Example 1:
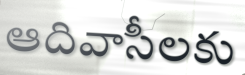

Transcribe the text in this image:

ఆదివాసీలకు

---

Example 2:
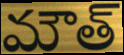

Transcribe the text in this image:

మౌత్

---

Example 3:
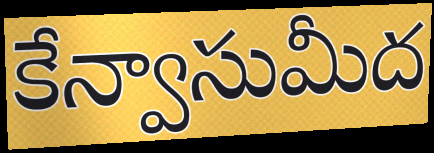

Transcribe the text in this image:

కేన్వాసుమీద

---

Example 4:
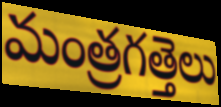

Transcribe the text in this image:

మంత్రగత్తెలు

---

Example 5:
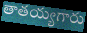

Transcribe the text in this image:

తాతయ్యగారు